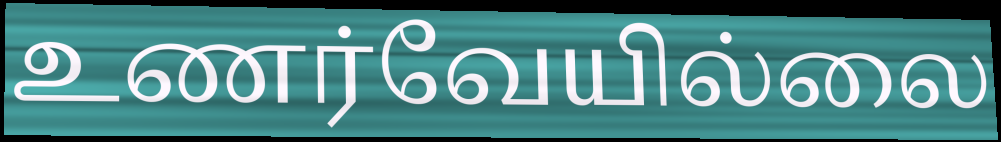
உணர்வேயில்லை